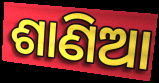
ଶାଣିଆ